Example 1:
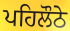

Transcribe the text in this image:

ਪਹਿਲੌਠੇ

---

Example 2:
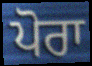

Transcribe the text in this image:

ਪੋਰਾ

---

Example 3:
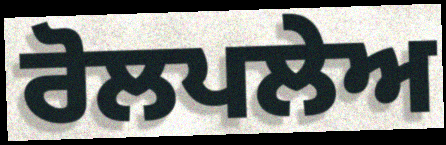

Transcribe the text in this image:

ਰੋਲਪਲੇਅ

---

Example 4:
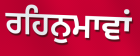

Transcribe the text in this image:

ਰਹਿਨੁਮਾਵਾਂ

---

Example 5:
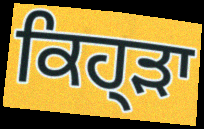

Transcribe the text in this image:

ਕਿਹ੍ੜਾ